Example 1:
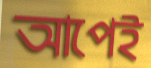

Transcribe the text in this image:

আপেই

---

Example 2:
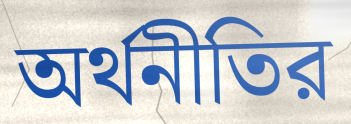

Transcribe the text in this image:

অর্থনীতির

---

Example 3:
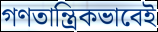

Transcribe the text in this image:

গণতান্ত্রিকভাবেই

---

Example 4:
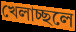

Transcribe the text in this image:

খেলাচ্ছলে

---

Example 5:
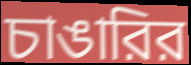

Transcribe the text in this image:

চাঙারির